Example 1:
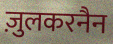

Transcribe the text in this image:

ज़ुलकरनैन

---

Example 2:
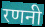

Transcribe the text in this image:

रणनी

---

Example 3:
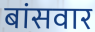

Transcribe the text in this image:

बांसवार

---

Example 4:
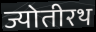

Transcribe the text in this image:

ज्योतीरथ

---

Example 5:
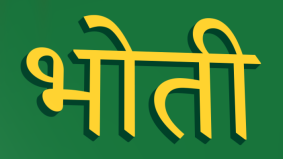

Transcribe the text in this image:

भोती